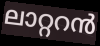
ലാറ്ററൻ